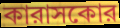
কারাসকোর